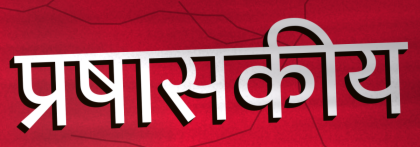
प्रषासकीय